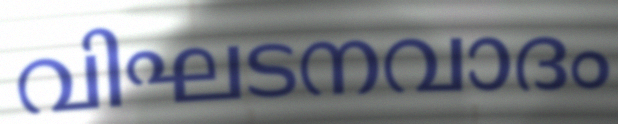
വിഘടനവാദം